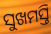
ସୁଖମସ୍ତି